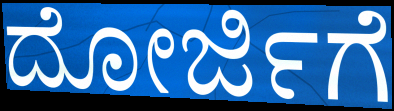
ದೋರ್ಜಿಗೆ